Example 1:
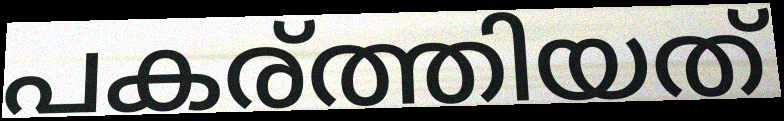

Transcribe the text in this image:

പകര്ത്തിയത്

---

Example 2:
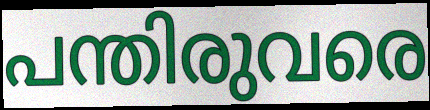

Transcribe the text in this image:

പന്തിരുവരെ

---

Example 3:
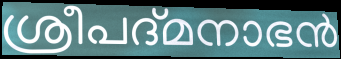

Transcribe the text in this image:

ശ്രീപദ്മനാഭൻ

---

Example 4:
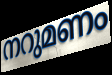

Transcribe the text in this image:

നറുമണം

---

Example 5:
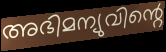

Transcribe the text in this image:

അഭിമന്യുവിന്റെ